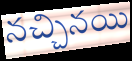
నచ్చినయి